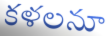
కళలనూ